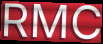
RMC